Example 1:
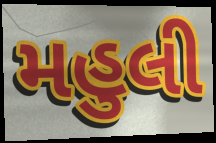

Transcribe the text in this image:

મહુલી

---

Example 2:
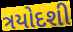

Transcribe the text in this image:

ત્રયોદશી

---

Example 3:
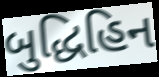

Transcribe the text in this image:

બુદ્ધિહિન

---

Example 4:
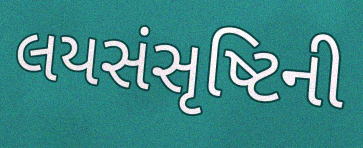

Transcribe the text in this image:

લયસંસૃષ્ટિની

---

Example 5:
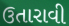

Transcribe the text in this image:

ઉતારાવી